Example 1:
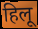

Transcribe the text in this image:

हिलू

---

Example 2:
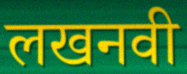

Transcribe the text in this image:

लखनवी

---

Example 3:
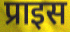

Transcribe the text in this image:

प्राइस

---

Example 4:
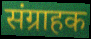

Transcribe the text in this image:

संग्राहक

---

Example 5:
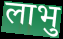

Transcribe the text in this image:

लाभु